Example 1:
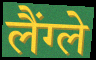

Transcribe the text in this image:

लैंग्ले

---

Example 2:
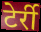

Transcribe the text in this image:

टेर्री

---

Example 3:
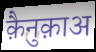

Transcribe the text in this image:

क़ैनुक़ाअ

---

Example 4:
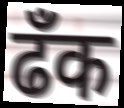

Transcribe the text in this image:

ढँक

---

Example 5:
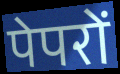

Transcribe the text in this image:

पेपरों